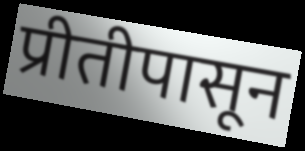
प्रीतीपासून